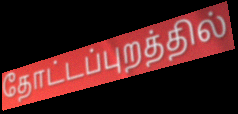
தோட்டப்புறத்தில்